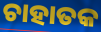
ଚାହାତକ